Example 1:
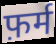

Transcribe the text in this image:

फ़र्म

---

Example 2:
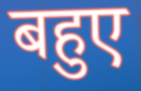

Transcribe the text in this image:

बहुए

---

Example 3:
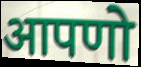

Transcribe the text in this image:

आपणो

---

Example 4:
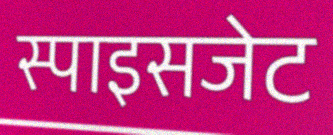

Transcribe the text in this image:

स्पाइसजेट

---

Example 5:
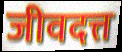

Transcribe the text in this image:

जीवदत्त